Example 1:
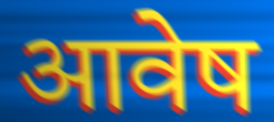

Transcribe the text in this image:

आवेष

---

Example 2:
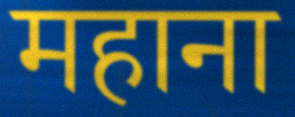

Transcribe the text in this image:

महाना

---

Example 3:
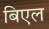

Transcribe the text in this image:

बिएल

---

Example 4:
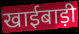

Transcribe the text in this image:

खाईबाड़ी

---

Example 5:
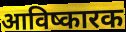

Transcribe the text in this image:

आविष्कारक